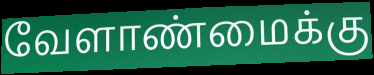
வேளாண்மைக்கு